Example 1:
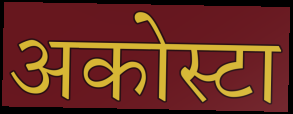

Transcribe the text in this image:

अकोस्टा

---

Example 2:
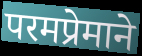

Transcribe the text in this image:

परमप्रेमाने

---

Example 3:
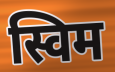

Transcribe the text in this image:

स्विम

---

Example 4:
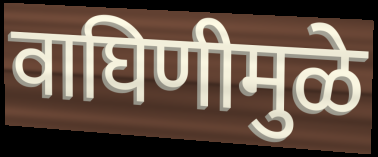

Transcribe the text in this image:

वाघिणीमुळे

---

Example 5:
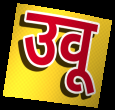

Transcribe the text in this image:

उवू